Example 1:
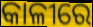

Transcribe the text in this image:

କାଳୀରେ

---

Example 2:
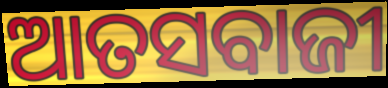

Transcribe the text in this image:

ଆତସବାଜୀ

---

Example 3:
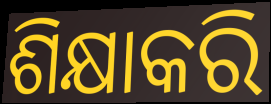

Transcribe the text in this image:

ଶିକ୍ଷାକରି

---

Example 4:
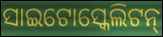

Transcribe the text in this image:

ସାଇଟୋସ୍କେଲିଟନ୍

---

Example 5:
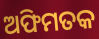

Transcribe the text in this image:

ଅଫିମତକ